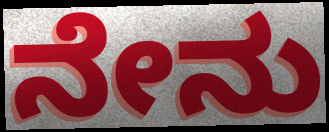
ನೇನು